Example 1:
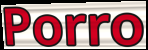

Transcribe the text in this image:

Porro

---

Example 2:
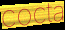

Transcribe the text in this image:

cocta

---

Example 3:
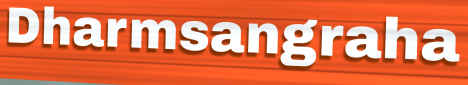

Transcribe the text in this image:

Dharmsangraha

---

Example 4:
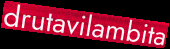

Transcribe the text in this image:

drutavilambita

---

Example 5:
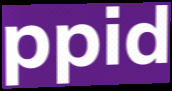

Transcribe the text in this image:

ppid